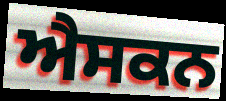
ਐਸਕਨ